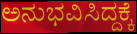
ಅನುಭವಿಸಿದ್ದಕ್ಕೆ